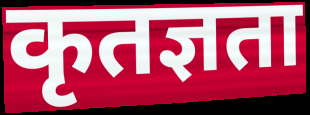
कृतज्ञता